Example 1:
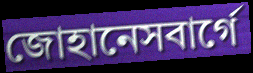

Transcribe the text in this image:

জোহানেসবার্গে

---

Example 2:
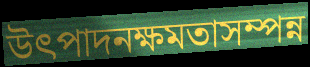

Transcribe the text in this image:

উৎপাদনক্ষমতাসম্পন্ন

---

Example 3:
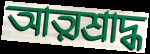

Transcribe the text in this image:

আত্মশ্রাদ্ধ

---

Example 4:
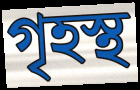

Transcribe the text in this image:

গৃহস্থ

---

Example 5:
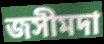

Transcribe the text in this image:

জসীমদা